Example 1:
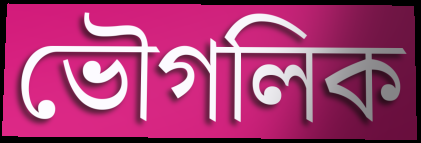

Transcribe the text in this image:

ভৌগলিক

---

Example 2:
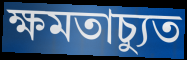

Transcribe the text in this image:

ক্ষমতাচ্যুত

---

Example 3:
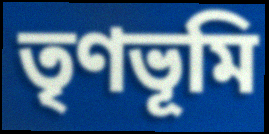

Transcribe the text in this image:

তৃণভূমি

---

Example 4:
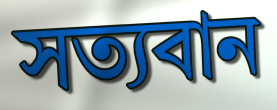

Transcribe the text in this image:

সত্যবান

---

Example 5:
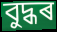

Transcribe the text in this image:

বুদ্ধৰ